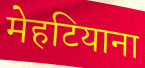
मेहटियाना